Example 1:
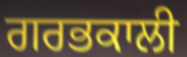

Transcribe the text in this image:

ਗਰਭਕਾਲੀ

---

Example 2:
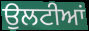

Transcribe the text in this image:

ਉਲਟੀਆਂ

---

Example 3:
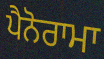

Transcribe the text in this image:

ਪੈਨੋਰਾਮਾ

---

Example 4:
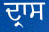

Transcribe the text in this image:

ਦ੍ਰਾਸ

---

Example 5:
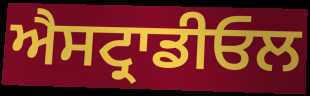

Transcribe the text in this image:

ਐਸਟ੍ਰਾਡੀਓਲ